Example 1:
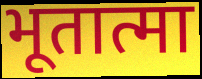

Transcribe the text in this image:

भूतात्मा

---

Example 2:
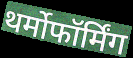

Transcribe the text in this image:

थर्मोफॉर्मिंग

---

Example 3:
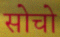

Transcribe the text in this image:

सोचो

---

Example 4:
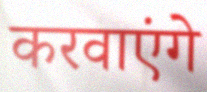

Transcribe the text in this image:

करवाएंगे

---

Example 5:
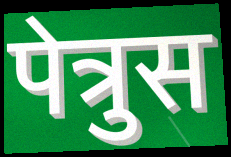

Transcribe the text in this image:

पेत्रुस